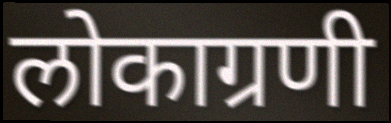
लोकाग्रणी